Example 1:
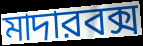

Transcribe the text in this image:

মাদারবক্স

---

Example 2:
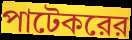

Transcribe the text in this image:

পাটেকরের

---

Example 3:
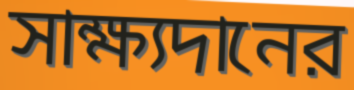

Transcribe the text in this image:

সাক্ষ্যদানের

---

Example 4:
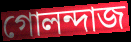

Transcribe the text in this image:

গোলন্দাজ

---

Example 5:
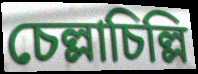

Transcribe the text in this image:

চেল্লাচিল্লি